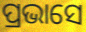
ପ୍ରଭାସେ